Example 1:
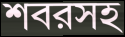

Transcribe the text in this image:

শবরসহ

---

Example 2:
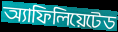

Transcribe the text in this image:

অ্যাফিলিয়েটেড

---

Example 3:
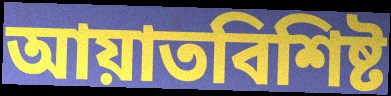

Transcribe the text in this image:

আয়াতবিশিষ্ট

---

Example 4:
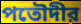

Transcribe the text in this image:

পতৌদীর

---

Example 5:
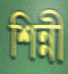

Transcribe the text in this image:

শিন্নী